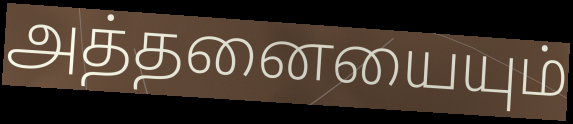
அத்தனையையும்